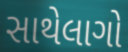
સાથેલાગો